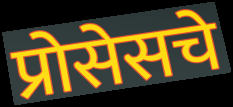
प्रोसेसचे